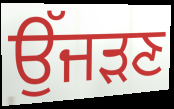
ਉੱਜੜਣ